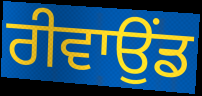
ਰੀਵਾਉਂਡ